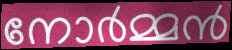
നോർമ്മൻ